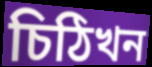
চিঠিখন